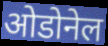
ओडोनेल